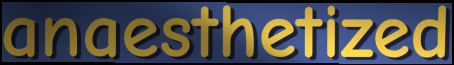
anaesthetized